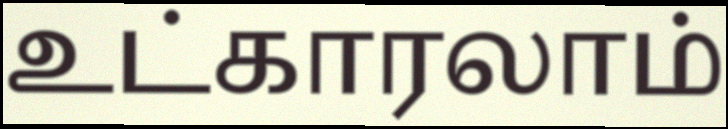
உட்காரலாம்